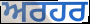
ਅਰਹਰ